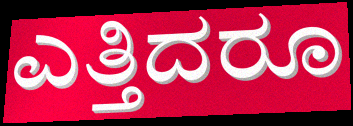
ಎತ್ತಿದರೂ